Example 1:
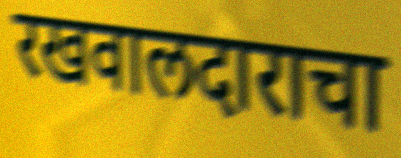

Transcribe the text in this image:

रखवालदाराचा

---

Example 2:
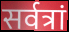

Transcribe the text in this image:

सर्वत्रां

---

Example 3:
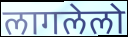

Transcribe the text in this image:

लागलेलो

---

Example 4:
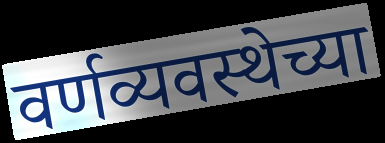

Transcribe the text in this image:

वर्णव्यवस्थेच्या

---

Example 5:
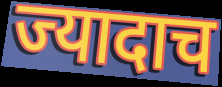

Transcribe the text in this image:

ज्यादाच